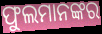
ଫୁଲମାନଙ୍କର